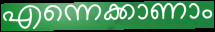
എന്നെക്കാണാം